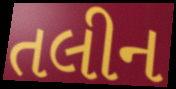
તલીન